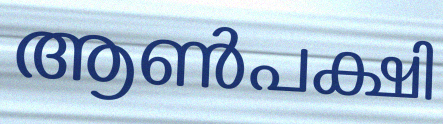
ആൺപക്ഷി